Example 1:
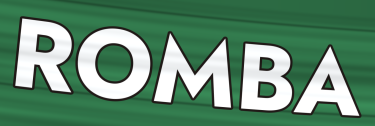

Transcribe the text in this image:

ROMBA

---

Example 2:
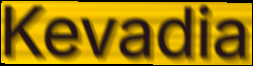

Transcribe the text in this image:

Kevadia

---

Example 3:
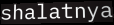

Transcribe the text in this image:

shalatnya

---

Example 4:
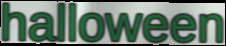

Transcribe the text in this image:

halloween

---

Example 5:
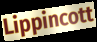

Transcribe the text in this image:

Lippincott